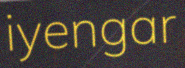
iyengar